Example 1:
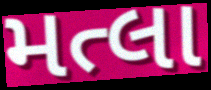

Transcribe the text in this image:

મત્લા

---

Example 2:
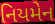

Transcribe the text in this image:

નિયમેન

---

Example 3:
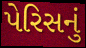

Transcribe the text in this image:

પેરિસનું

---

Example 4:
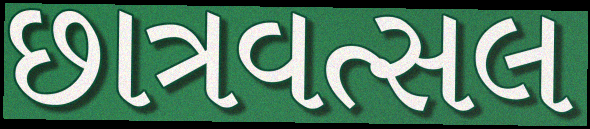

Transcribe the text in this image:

છાત્રવત્સલ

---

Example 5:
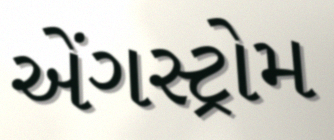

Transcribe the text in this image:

એંગસ્ટ્રોમ